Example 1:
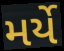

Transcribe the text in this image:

મર્યે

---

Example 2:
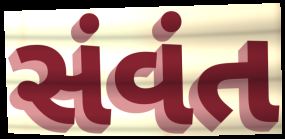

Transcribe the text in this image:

સંવંત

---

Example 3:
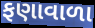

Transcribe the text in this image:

ફણાવાળા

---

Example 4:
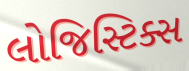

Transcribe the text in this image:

લોજિસ્ટિક્સ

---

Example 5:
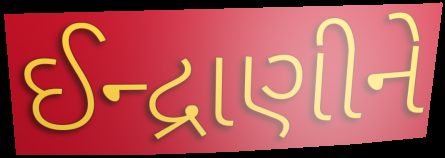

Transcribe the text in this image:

ઈન્દ્રાણીને